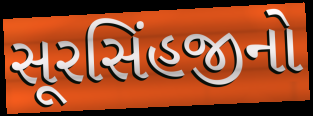
સૂરસિંહજીનો